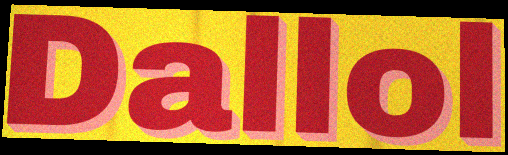
Dallol